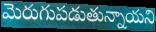
మెరుగుపడుతున్నాయని